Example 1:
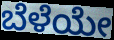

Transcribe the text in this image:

ಬೆಳೆಯೇ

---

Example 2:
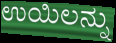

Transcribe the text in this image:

ಉಯಿಲನ್ನು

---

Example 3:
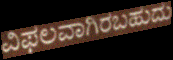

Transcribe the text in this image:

ವಿಫಲವಾಗಿರಬಹುದು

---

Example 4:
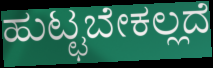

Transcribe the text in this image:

ಹುಟ್ಟಬೇಕಲ್ಲದೆ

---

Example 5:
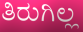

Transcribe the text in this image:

ತಿರುಗಿಲ್ಲ